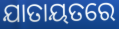
ଯାତାୟତରେ